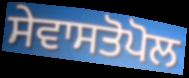
ਸੇਵਾਸਤੋਪੋਲ